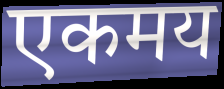
एकमय